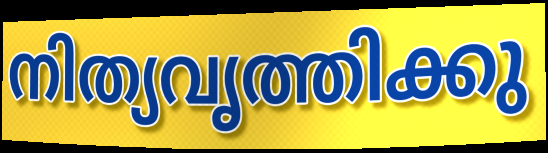
നിത്യവൃത്തിക്കു